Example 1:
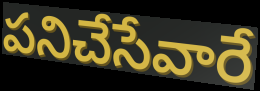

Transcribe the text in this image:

పనిచేసేవారే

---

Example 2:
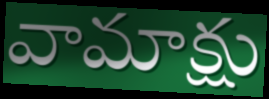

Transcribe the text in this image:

వామాక్షు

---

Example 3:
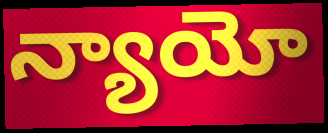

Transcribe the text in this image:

న్యాయో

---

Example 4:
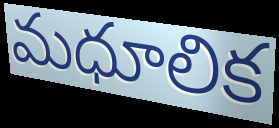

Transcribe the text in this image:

మధూలిక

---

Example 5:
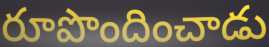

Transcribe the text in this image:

రూపొందించాడు